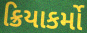
ક્રિયાકર્મો